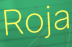
Roja